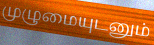
முழுமையுடனும்